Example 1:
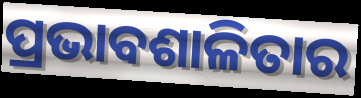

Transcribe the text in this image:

ପ୍ରଭାବଶାଳିତାର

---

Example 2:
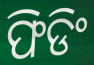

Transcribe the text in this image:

ଫିଡିଂ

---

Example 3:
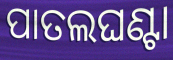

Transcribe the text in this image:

ପାତଲଘଣ୍ଟା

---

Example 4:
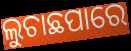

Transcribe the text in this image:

ଲୁଚାଛପାରେ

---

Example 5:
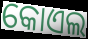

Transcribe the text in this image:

କୋଏଲ